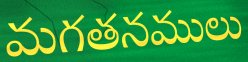
మగతనములు